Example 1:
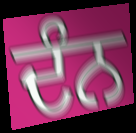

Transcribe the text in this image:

ਦੰਨ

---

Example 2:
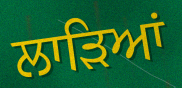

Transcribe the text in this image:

ਲਾੜਿਆਂ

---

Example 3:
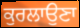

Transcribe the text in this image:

ਕੁਰਲਾਉਣਾ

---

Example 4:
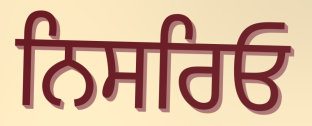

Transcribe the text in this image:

ਨਿਸਰਿਓ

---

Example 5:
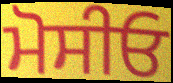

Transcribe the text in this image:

ਮੋਸੀਓ